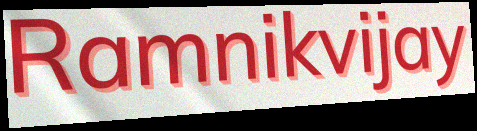
Ramnikvijay